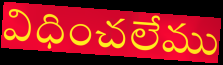
విధించలేము